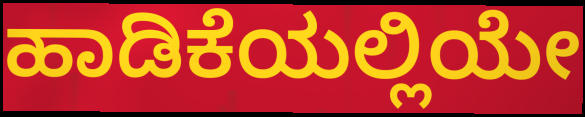
ಹಾಡಿಕೆಯಲ್ಲಿಯೇ